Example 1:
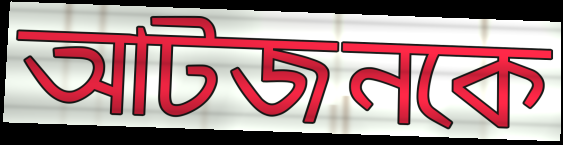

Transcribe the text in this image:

আটজনকে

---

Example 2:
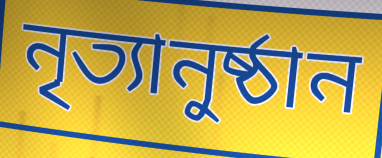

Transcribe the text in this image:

নৃত্যানুষ্ঠান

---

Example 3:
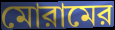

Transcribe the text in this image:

মোরামের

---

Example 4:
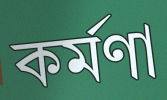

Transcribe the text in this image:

কর্মণা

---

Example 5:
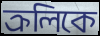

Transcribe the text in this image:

ক্রলিকে